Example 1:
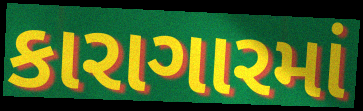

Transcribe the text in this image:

કારાગારમાં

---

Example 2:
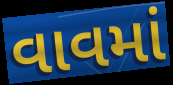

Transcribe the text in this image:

વાવમાં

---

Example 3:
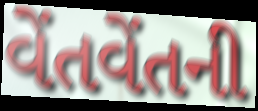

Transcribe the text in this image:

વેંતવેંતની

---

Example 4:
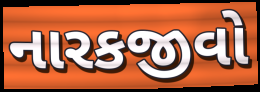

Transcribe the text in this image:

નારકજીવો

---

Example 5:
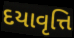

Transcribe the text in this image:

દયાવૃત્તિ